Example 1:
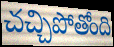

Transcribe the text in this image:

చచ్చిపోతోంది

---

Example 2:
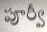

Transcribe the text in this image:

పూర్వీ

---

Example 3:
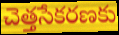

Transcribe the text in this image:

చెత్తసేకరణకు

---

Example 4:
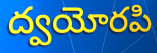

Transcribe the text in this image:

ద్వయోరపి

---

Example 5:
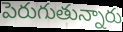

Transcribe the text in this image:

పెరుగుతున్నారు